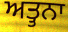
ਅਤ੍ਤਨਾ